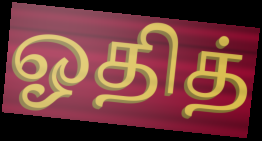
ஓதித்